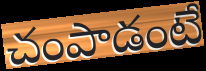
చంపాడంటే